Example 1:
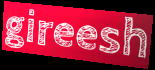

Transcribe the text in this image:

gireesh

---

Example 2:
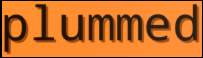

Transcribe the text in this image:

plummed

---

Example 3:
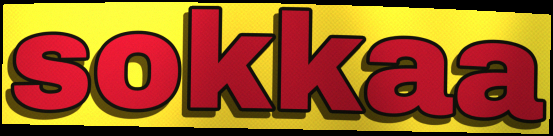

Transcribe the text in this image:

sokkaa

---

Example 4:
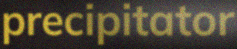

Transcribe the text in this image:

precipitator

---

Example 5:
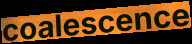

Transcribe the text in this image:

coalescence